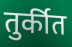
तुर्कीत